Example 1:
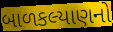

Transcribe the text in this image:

બાળકલ્યાણનો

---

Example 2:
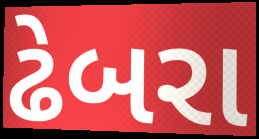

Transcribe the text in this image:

ઢેબરા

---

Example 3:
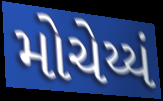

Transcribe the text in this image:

મોચેય્યં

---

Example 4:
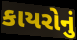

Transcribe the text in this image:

કાયરોનું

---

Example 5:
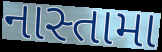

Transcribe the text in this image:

નાસ્તામા